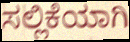
ಸಲ್ಲಿಕೆಯಾಗಿ